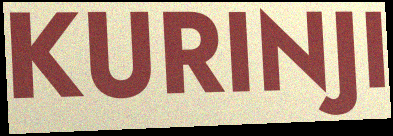
KURINJI